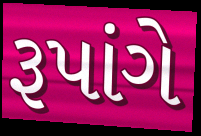
રૂપાંગે